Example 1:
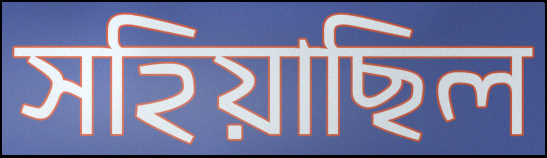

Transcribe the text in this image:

সহিয়াছিল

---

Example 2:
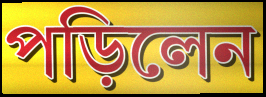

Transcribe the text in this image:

পড়িলেন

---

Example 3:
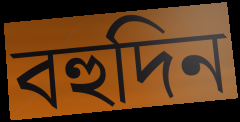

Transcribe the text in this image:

বহুদিন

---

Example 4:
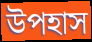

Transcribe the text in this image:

উপহাস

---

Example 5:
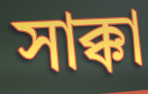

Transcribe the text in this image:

সাক্কা